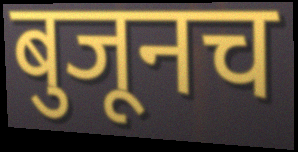
बुजूनच